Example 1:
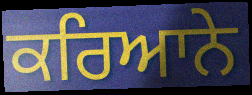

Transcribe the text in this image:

ਕਰਿਆਨੇ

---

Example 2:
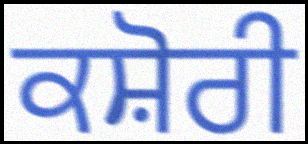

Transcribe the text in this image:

ਕਸ਼ੋਰੀ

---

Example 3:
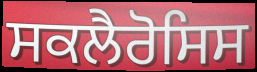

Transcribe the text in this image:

ਸਕਲੈਰੋਸਿਸ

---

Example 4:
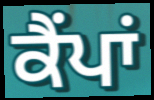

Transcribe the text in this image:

ਕੈੰਪਾਂ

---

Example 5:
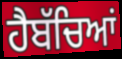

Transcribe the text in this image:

ਹੈਬੱਚਿਆਂ